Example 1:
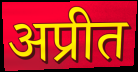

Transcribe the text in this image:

अप्रीत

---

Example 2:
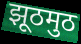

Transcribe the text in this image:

झूठमुठ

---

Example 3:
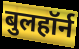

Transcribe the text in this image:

बुलहॉर्न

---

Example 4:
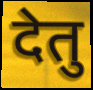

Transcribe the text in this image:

देतु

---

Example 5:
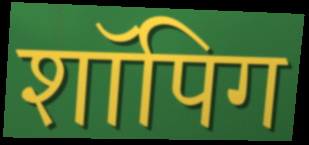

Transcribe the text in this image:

शॉपिग